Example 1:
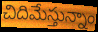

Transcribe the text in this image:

చిదిమేస్తున్నాం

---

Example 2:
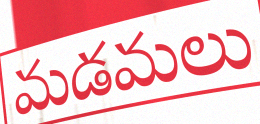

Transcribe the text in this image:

మడమలు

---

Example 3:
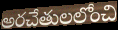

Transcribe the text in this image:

అరచేతులలోంచి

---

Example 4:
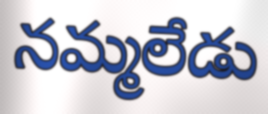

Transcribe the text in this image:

నమ్మలేడు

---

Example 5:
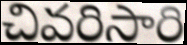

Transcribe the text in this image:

చివరిసారి